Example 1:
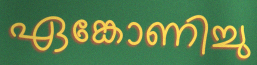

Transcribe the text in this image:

ഏങ്കോണിച്ചു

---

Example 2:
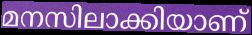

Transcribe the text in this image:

മനസിലാക്കിയാണ്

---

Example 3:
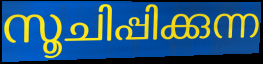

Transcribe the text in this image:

സൂചിപ്പിക്കുന്ന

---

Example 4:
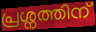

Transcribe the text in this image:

പ്രശ്നത്തിന്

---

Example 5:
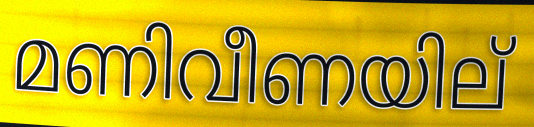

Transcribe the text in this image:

മണിവീണയില്